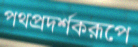
পথপ্রদর্শকরূপে